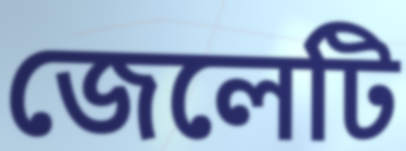
জেলেটি